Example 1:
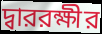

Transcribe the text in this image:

দ্বাররক্ষীর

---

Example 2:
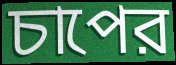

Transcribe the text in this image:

চাপের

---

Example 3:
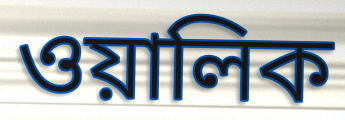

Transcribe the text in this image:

ওয়ালিক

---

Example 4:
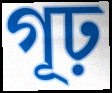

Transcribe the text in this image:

গূঢ়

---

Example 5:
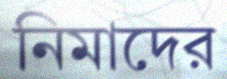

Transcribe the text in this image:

নিমাদের